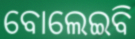
ବୋଲେଇବି